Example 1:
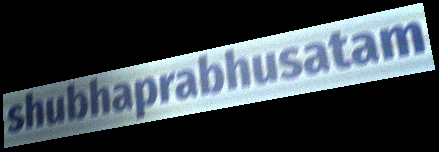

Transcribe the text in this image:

shubhaprabhusatam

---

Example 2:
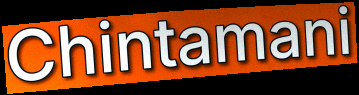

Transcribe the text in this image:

Chintamani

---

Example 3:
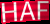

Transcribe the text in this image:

HAF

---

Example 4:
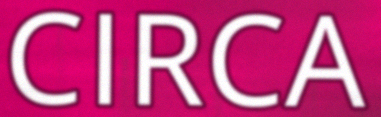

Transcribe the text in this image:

CIRCA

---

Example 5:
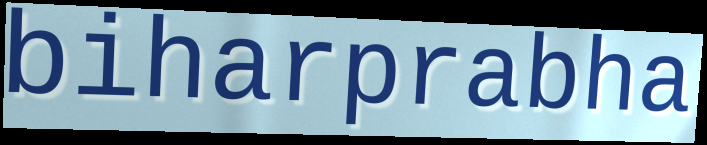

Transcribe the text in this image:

biharprabha